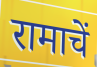
रामाचें